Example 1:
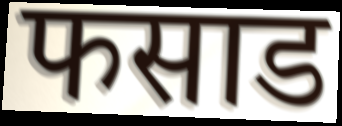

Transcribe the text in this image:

फसाड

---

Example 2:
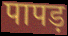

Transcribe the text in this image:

पापड़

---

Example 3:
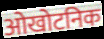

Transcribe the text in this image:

ओखोटनिक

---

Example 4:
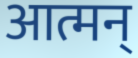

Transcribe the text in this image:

आत्मन्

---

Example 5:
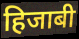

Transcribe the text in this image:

हिजाबी